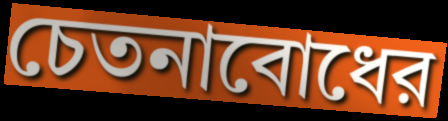
চেতনাবোধের